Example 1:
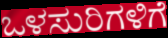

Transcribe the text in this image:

ಒಳಸುರಿಗಳಿಗೆ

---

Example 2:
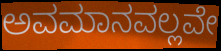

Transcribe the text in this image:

ಅವಮಾನವಲ್ಲವೇ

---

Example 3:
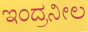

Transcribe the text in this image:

ಇಂದ್ರನೀಲ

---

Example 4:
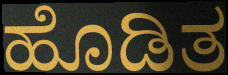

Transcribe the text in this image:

ಹೊಡಿತ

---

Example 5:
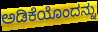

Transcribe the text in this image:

ಅಡಿಕೆಯೊಂದನ್ನು